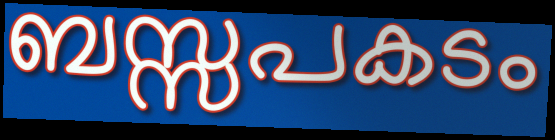
ബസ്സപകടം